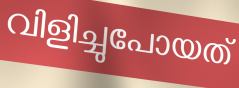
വിളിച്ചുപോയത്